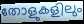
തോളുകളിലും